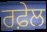
ਰਫ਼ੇਲ